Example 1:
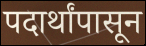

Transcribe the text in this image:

पदार्थांपासून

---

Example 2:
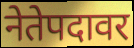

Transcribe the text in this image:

नेतेपदावर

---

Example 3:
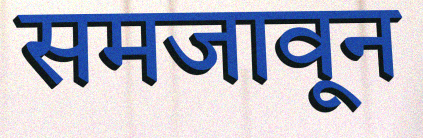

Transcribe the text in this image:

समजावून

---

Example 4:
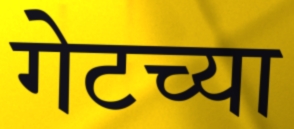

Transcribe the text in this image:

गेटच्या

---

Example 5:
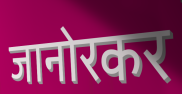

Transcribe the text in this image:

जानोरकर